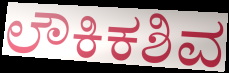
ಲೌಕಿಕಶಿವ